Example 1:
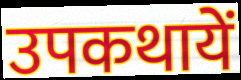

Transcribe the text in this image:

उपकथायें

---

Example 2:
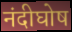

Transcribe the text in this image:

नंदीघोष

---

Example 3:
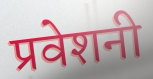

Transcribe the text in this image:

प्रवेशनी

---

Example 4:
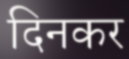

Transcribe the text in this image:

दिनकर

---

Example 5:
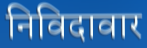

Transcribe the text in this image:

निविदावार